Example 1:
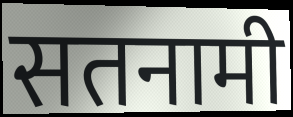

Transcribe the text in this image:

सतनामी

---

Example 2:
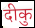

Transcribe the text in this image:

दीकु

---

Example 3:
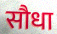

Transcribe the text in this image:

सौधा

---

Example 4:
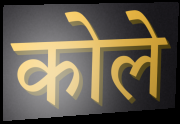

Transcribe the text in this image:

कोले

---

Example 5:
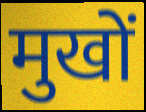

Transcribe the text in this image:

मुखों